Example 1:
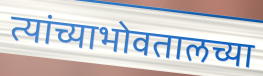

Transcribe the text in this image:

त्यांच्याभोवतालच्या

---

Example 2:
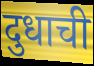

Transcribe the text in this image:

दुधाची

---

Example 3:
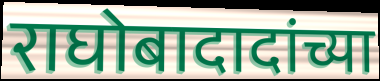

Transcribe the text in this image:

राघोबादादांच्या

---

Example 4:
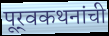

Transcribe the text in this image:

पूर्वकथनांची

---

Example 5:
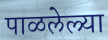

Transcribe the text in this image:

पाळलेल्या